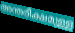
അന്തരീക്ഷമുള്ള